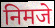
निमजे